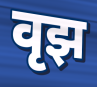
वृझ